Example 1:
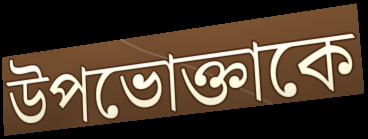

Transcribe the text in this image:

উপভোক্তাকে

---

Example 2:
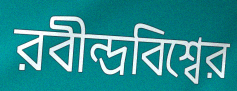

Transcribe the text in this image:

রবীন্দ্রবিশ্বের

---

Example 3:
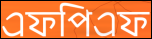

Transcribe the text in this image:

এফপিএফ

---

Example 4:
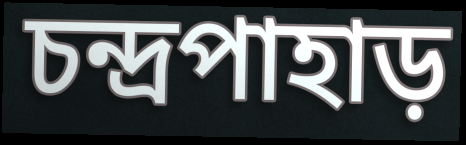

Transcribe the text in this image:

চন্দ্রপাহাড়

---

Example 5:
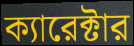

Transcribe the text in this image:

ক্যারেক্টার